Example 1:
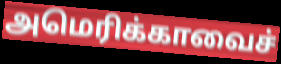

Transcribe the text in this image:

அமெரிக்காவைச்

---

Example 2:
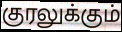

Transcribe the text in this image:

குரலுக்கும்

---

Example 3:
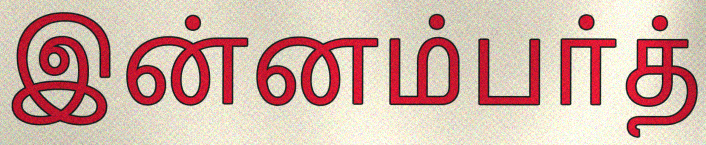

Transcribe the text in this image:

இன்னம்பர்த்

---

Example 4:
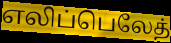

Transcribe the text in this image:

எலிப்பெலேத்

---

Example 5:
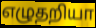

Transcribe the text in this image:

எழுதறியா